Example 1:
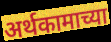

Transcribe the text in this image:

अर्थकामाच्या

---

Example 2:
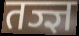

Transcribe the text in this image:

तज्ज्ञ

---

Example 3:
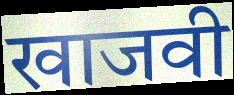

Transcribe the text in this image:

खाजवी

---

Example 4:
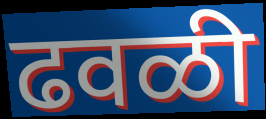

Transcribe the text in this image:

ढवळी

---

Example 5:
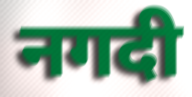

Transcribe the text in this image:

नगदी